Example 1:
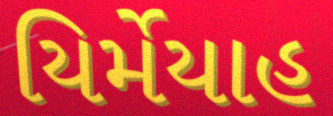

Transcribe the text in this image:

યિર્મેયાહ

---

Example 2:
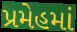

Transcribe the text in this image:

પ્રમેહમાં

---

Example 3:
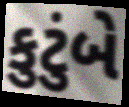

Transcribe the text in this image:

કુટુંબે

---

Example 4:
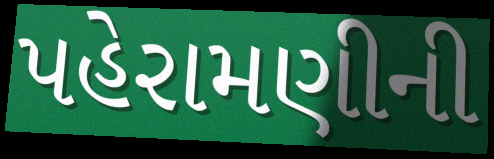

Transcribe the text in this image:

પહેરામણીની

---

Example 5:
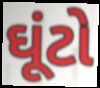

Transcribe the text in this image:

ઘૂંટો